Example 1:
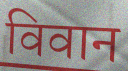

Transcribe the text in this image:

विवान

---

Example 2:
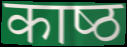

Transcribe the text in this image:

काष्‍ठ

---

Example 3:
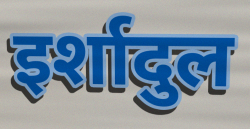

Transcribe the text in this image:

इर्शादुल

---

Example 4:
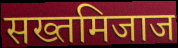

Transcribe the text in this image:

सख्तमिजाज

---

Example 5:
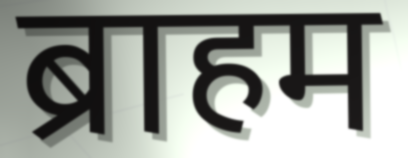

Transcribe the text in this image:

ब्राहम